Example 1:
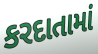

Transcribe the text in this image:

કરદાતામાં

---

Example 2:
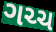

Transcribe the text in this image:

ગચ્ચ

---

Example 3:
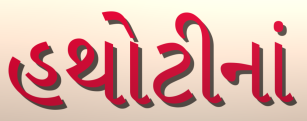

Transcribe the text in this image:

હથોટીનાં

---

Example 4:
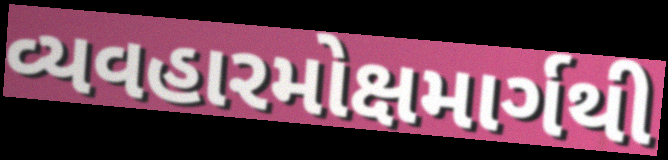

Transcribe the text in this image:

વ્યવહારમોક્ષમાર્ગથી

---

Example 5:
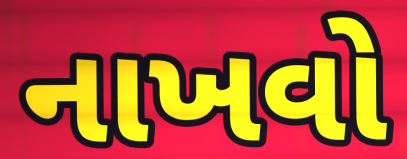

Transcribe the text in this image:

નાખવો